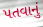
પતવાનું